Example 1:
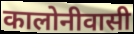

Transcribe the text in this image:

कालोनीवासी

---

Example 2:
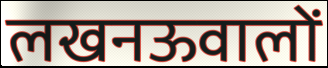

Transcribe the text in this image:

लखनऊवालों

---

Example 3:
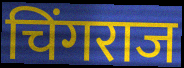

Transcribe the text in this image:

चिंगराज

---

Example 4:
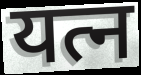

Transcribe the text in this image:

यत्न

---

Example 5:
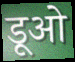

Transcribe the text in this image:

डूओ